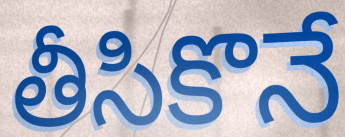
తీసికొనే